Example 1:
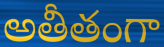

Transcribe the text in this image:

అతీతంగా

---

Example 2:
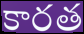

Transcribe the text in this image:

కారత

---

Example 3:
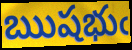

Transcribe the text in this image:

ఋషభుఁ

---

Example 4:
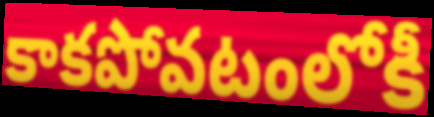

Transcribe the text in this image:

కాకపోవటంలోకీ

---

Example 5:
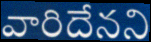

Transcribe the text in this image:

వారిదేనని